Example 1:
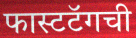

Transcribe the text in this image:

फास्टटॅगची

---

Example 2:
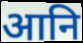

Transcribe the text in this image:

आनि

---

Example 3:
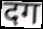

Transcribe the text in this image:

दग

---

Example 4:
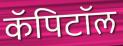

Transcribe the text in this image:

कॅपिटॉल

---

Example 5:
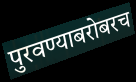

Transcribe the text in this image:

पुरवण्याबरोबरच